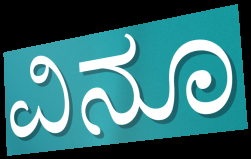
ವಿನೂ